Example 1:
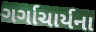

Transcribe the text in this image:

ગર્ગાચાર્યના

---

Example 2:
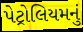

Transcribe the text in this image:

પેટ્રોલિયમનું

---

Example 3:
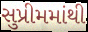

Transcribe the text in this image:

સુપ્રીમમાંથી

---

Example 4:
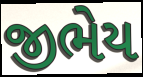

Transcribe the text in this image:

જીભેય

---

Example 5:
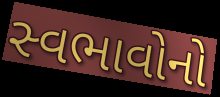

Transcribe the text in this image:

સ્વભાવોનો